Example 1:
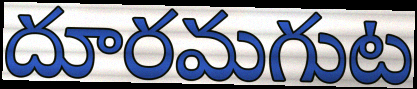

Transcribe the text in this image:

దూరమగుట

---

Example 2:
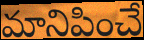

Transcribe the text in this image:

మానిపించే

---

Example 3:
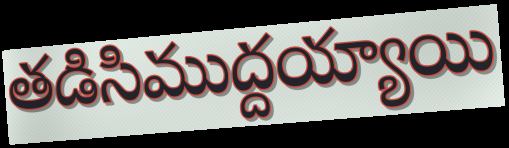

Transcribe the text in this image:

తడిసిముద్దయ్యాయి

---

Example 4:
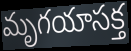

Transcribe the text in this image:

మృగయాసక్త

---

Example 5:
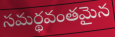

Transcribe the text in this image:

సమర్థవంతమైన